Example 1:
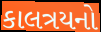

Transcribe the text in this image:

કાલત્રયનો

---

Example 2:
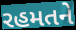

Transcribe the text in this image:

રહમતને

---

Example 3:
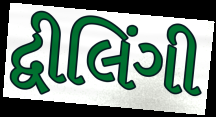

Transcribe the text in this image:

દ્વીલિંગી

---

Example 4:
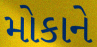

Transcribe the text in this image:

મોકાને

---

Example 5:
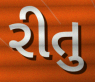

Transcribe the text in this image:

રીતુ